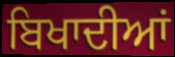
ਬਿਖਾਦੀਆਂ